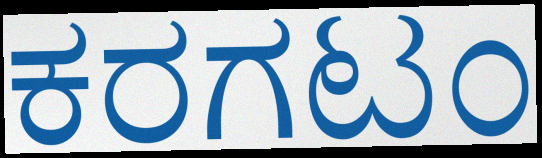
ಕರಗಟಂ